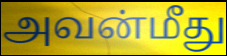
அவன்மீது